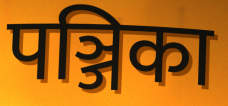
पञ्जिका